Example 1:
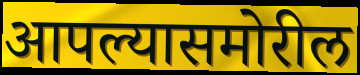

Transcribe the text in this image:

आपल्यासमोरील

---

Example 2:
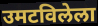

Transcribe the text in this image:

उमटविलेला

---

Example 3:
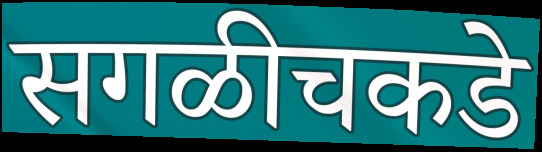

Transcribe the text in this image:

सगळीचकडे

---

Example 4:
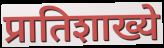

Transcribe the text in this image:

प्रातिशाख्ये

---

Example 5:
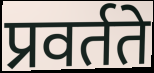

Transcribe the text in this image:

प्रवर्तते